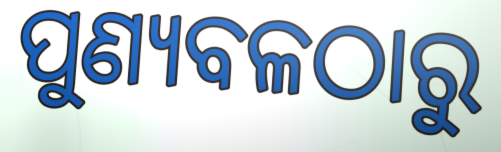
ପୁଣ୍ୟବଳଠାରୁ